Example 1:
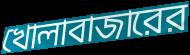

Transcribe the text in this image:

খোলাবাজারের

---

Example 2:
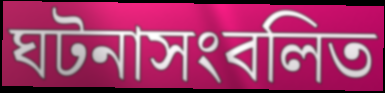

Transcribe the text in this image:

ঘটনাসংবলিত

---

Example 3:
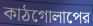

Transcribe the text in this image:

কাঠগোলাপের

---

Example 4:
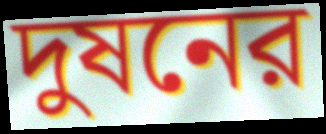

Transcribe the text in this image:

দুষনের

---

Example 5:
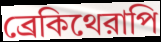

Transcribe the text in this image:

ব্রেকিথেরাপি